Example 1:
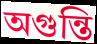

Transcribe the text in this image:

অগুন্তি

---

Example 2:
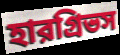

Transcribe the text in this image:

হারগ্রিভস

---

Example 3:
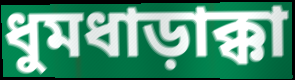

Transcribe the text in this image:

ধুমধাড়াক্কা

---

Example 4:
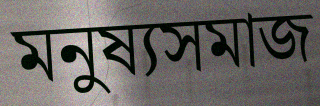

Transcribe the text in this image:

মনুষ্যসমাজ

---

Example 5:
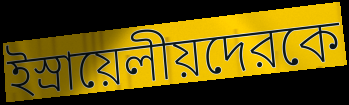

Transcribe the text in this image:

ইস্রায়েলীয়দেরকে